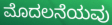
ಮೊದಲನೆಯವು